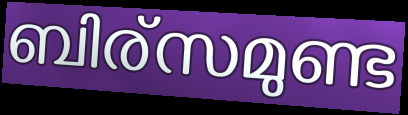
ബിര്സമുണ്ട